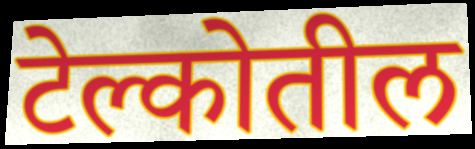
टेल्कोतील